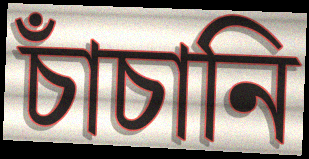
চাঁচানি